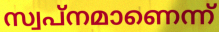
സ്വപ്നമാണെന്ന്